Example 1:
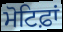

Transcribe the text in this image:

ਮੋਟਿਫ਼ਾਂ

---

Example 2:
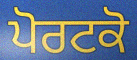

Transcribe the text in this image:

ਪੋਰਟਕੋ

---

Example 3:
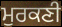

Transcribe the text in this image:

ਮੁਰਕਣੀ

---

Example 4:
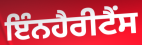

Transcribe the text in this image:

ਇੰਨਹੈਰੀਟੈੰਸ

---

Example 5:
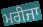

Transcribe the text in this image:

ਮਰੀਜਾ